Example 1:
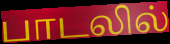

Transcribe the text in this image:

பாடலில்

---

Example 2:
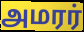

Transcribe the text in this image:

அமரர்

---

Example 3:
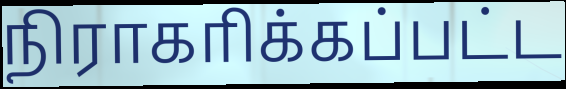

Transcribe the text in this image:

நிராகரிக்கப்பட்ட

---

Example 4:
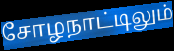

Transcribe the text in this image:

சோழநாட்டிலும்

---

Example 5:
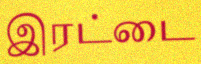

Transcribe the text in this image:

இரட்டை